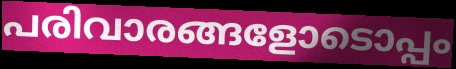
പരിവാരങ്ങളോടൊപ്പം